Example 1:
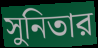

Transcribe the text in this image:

সুনিতার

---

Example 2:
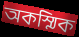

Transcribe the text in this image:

অকস্মিক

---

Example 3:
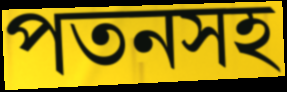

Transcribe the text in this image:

পতনসহ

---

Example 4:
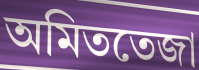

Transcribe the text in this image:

অমিততেজা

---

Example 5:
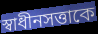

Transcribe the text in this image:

স্বাধীনসত্তাকে